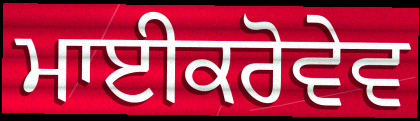
ਮਾਈਕਰੋਵੇਵ